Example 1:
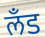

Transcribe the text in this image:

लँड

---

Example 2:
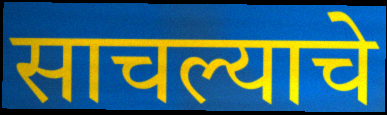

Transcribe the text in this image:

साचल्याचे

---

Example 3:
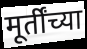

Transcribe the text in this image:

मूर्तींच्या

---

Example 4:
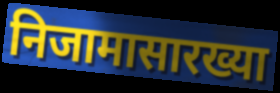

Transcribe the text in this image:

निजामासारख्या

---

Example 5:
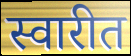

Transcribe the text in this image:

स्वारीत